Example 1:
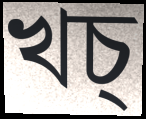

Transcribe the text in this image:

খচ্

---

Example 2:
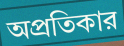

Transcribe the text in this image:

অপ্রতিকার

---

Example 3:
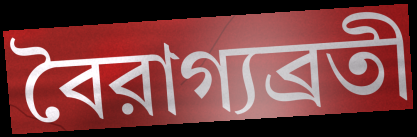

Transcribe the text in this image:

বৈরাগ্যব্রতী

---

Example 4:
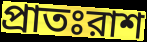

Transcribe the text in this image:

প্রাতঃরাশ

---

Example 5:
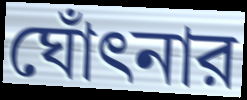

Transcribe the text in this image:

ঘোঁৎনার